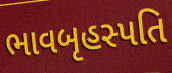
ભાવબૃહસ્પતિ